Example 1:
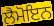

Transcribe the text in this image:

ਲੈਮੋਇਨ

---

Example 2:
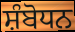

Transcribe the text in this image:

ਸ਼ੰਬੋਧਨ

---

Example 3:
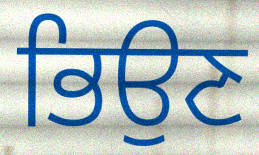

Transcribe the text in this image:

ਭਿਉਣ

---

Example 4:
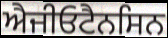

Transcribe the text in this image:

ਐਜੀਓਟੈਨਸਿਨ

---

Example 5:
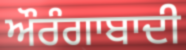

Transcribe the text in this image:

ਔਰੰਗਾਬਾਦੀ